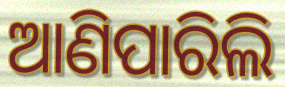
ଆଣିପାରିଲି